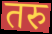
तरु